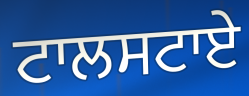
ਟਾਲਸਟਾਏ